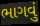
ભાગવું